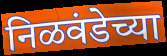
निळवंडेच्या